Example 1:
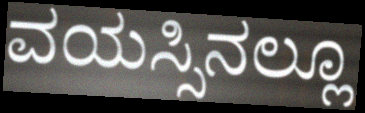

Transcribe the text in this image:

ವಯಸ್ಸಿನಲ್ಲೂ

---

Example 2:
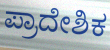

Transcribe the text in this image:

ಪ್ರಾದೇಶಿಕ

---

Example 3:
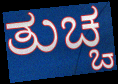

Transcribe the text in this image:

ತುಚ್ಚ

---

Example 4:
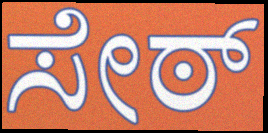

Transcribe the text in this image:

ಸೇಠ್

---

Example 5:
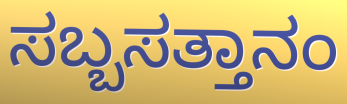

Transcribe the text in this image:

ಸಬ್ಬಸತ್ತಾನಂ